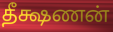
தீக்ஷணன்